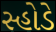
સ્હોડે